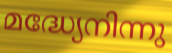
മദ്ധ്യേനിന്നു